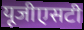
यूजीएसटी